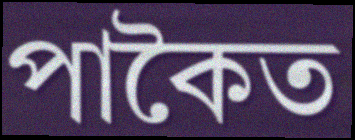
পাকৈত